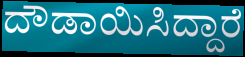
ದೌಡಾಯಿಸಿದ್ದಾರೆ